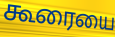
கூரையை